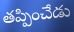
తప్పించేడు